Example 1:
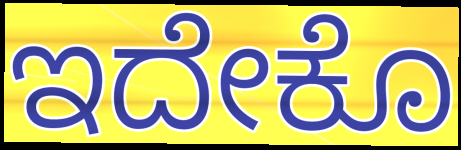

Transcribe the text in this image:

ಇದೇಕೊ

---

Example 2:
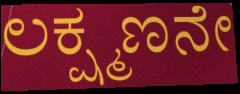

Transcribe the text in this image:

ಲಕ್ಷ್ಮಣನೇ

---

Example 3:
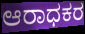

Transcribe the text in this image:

ಆರಾಧಕರ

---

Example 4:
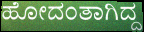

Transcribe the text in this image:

ಹೋದಂತಾಗಿದ್ದ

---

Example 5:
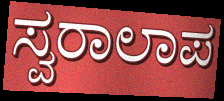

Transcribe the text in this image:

ಸ್ವರಾಲಾಪ